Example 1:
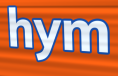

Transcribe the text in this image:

hym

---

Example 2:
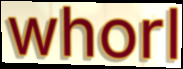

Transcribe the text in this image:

whorl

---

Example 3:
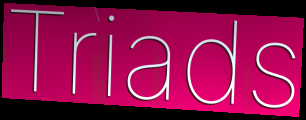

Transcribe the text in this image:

Triads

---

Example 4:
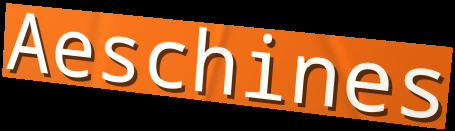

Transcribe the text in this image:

Aeschines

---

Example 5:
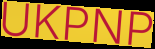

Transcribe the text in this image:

UKPNP